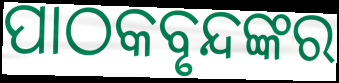
ପାଠକବୃନ୍ଦଙ୍କର